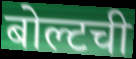
बोल्टची